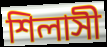
শিলাসী